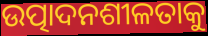
ଉତ୍ପାଦନଶୀଳତାକୁ